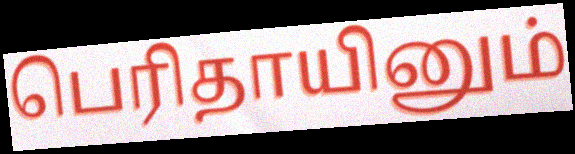
பெரிதாயினும்